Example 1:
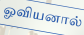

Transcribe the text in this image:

ஓவியனால்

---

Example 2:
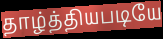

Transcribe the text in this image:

தாழ்த்தியபடியே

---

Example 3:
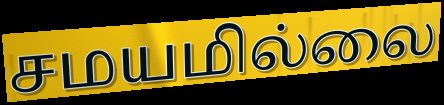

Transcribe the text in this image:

சமயமில்லை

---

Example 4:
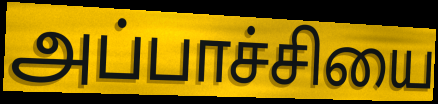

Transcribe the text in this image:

அப்பாச்சியை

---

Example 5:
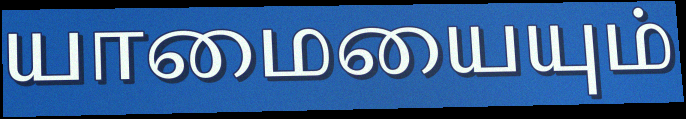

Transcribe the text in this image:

யாமையையும்